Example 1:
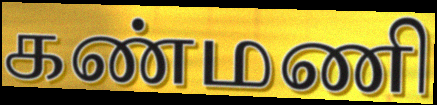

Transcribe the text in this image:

கண்மணி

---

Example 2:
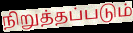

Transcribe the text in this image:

நிறுத்தப்படும்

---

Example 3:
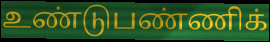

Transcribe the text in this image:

உண்டுபண்ணிக்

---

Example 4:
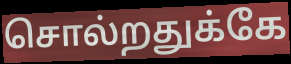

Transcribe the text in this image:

சொல்றதுக்கே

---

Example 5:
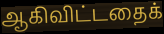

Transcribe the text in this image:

ஆகிவிட்டதைக்